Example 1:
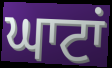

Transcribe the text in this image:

ਘਾਟਾਂ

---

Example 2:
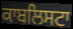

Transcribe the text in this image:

ਕਾਬਲਿਸਟਾ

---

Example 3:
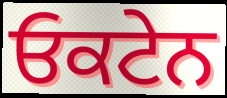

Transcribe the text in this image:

ਓਕਟੇਨ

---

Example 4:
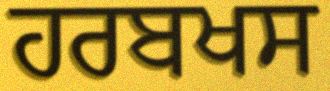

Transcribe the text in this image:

ਹਰਬਖਸ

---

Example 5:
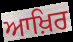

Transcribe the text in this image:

ਆਖ਼ਿਰ